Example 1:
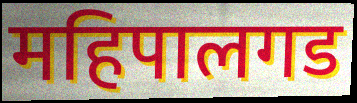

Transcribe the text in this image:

महिपालगड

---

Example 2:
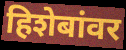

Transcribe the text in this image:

हिशेबांवर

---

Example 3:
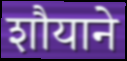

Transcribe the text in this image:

शौयाने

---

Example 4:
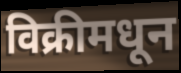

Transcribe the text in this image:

विक्रीमधून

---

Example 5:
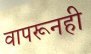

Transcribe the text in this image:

वापरूनही